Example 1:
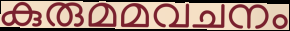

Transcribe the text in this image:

കുരുമമവചനം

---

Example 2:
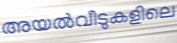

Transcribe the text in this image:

അയൽവീടുകളിലെ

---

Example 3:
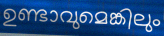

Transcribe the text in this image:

ഉണ്ടാവുമെങ്കിലും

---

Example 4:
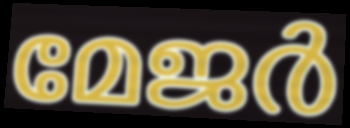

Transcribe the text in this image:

മേജർ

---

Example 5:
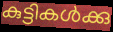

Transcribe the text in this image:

കുട്ടികൾക്കു